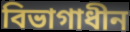
বিভাগাধীন